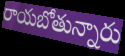
రాయబోతున్నారు